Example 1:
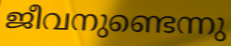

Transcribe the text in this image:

ജീവനുണ്ടെന്നു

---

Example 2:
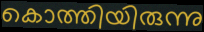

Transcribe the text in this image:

കൊത്തിയിരുന്നു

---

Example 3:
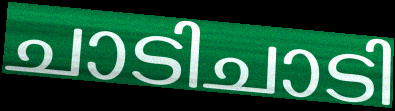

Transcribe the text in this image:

ചാടിചാടി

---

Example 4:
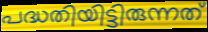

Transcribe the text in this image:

പദ്ധതിയിട്ടിരുന്നത്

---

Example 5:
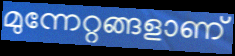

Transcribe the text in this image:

മുന്നേറ്റങ്ങളാണ്